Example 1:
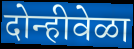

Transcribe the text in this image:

दोन्हीवेळा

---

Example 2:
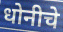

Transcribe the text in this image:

धोनीचे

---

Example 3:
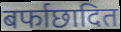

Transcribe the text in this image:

बर्फाछादित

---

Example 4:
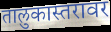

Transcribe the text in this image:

तालुकास्तरावर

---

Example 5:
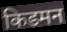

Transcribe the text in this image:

किडमन